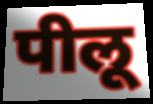
पीलू